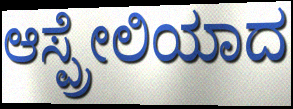
ಆಸ್ಪ್ರೇಲಿಯಾದ